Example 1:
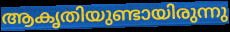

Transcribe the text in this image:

ആകൃതിയുണ്ടായിരുന്നു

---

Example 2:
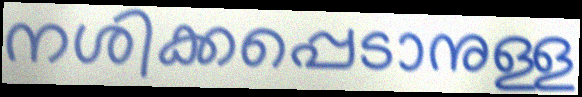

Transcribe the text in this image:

നശിക്കപ്പെടാനുള്ള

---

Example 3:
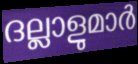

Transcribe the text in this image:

ദല്ലാളുമാർ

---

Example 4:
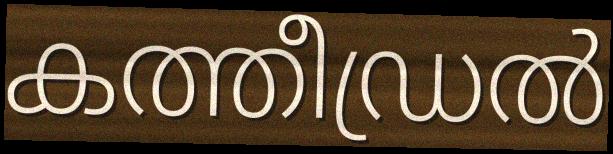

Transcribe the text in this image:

കത്തീഡ്രൽ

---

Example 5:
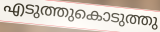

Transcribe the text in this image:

എടുത്തുകൊടുത്തു